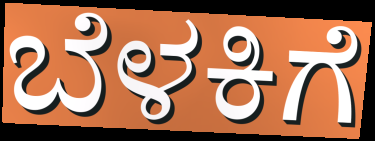
ಬೆಳಕಿಗೆ